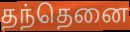
தந்தெனை